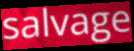
salvage